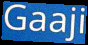
Gaaji